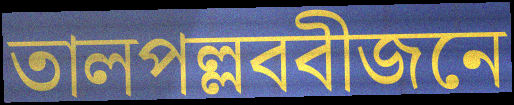
তালপল্লববীজনে